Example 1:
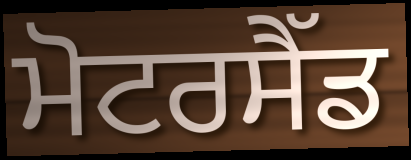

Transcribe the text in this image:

ਮੋਟਰਸੈੱਡ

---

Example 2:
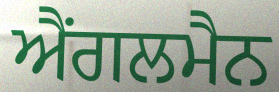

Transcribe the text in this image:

ਐਂਗਲਮੈਨ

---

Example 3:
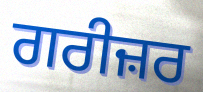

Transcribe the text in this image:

ਗਰੀਜ਼ਰ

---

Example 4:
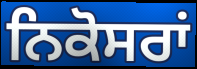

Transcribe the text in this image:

ਨਿਕੋਸਰਾਂ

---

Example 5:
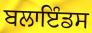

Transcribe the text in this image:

ਬਲਾਇੰਡਸ